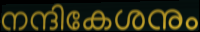
നന്ദികേശനും